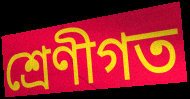
শ্রেণীগত